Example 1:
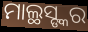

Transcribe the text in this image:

ମାଲ୍ଥସ୍ଙ୍କର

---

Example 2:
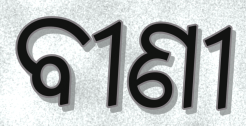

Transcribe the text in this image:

ବୀଣୀ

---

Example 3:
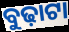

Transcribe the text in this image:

ବୁଢ଼ାଟା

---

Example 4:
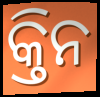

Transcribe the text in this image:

କ୍ତିନ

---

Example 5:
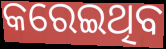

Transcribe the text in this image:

କରେଇଥିବ